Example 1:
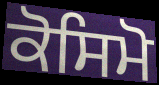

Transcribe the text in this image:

ਕੋਸਿਮੋ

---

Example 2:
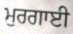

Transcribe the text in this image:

ਮੁਰਗਾਈ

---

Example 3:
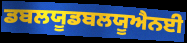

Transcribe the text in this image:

ਡਬਲਯੂਡਬਲਯੂਐਨਈ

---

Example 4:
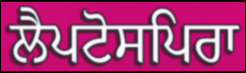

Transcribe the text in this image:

ਲੈਪਟੋਸਪਿਰਾ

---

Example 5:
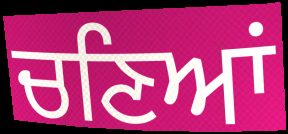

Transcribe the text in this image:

ਚਣਿਆਂ